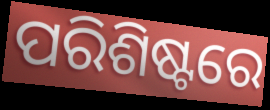
ପରିଶିଷ୍ଟରେ